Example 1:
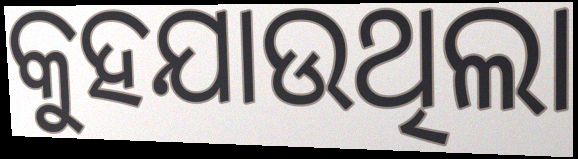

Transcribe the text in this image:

କୁହଯାଉଥିଲା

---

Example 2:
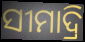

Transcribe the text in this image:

ସୀମାଦ୍ରି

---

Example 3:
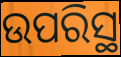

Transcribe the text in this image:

ଉପରିସ୍ଥ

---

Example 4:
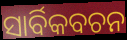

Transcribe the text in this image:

ସାର୍ବିକବଚନ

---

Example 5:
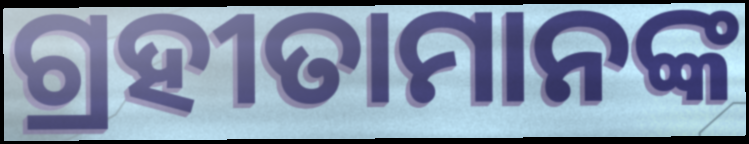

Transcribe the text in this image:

ଗ୍ରହୀତାମାନଙ୍କ